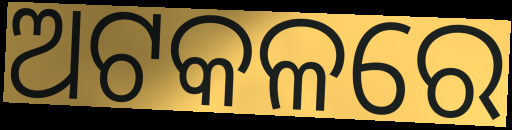
ଅଟକଳରେ